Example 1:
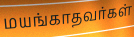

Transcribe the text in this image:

மயங்காதவர்கள்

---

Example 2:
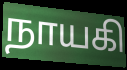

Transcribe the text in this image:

நாயகி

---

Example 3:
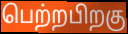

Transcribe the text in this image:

பெற்றபிறகு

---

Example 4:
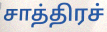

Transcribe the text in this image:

சாத்திரச்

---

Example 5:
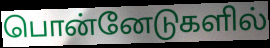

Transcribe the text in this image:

பொன்னேடுகளில்